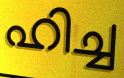
ഹിച്ച